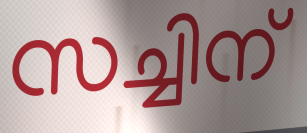
സച്ചിന്